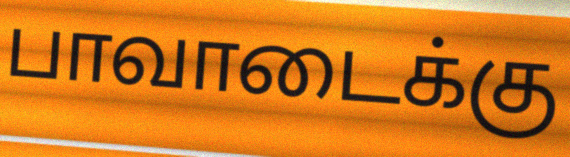
பாவாடைக்கு